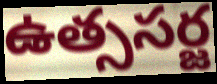
ఉత్ససర్జ